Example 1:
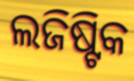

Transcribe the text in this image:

ଲଜିଷ୍ଟିକ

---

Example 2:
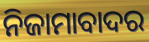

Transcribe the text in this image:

ନିଜାମାବାଦର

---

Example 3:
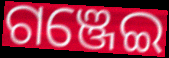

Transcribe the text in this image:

ଗଞ୍ଜେଇ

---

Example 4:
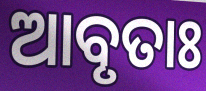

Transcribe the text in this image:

ଆବୃତାଃ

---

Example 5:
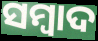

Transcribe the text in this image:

ସମ୍ବାଦ